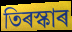
তিৰস্কাৰ